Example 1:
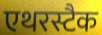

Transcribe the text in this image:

एथरस्टैक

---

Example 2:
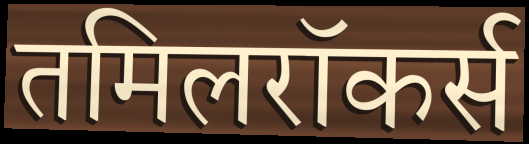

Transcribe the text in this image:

तमिलरॉकर्स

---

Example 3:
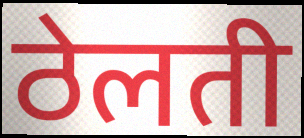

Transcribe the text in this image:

ठेलती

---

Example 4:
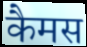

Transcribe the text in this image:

कैमस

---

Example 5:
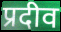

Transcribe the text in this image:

प्रदीव